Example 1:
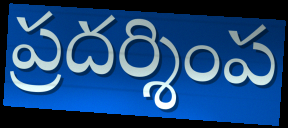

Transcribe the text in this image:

ప్రదర్శింప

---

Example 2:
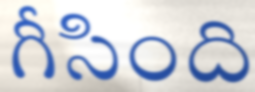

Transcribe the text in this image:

గీసింది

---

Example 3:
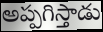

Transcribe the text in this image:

అప్పగిస్తాడు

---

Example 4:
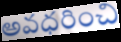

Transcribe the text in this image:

అవధరించి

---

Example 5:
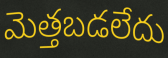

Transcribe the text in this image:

మెత్తబడలేదు